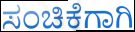
ಸಂಚಿಕೆಗಾಗಿ